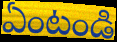
ఏంటండి